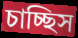
চাচ্ছিস